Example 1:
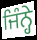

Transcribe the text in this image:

ਜਿੰਨ੍ਹੇ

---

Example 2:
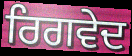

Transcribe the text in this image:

ਰਿਗਵੇਦ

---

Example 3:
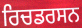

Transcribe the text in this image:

ਰਿਚਡਰਸਨ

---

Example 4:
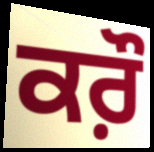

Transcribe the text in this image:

ਕਰ਼ੌ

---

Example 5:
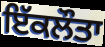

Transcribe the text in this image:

ਇੱਕਲੌਤਾ